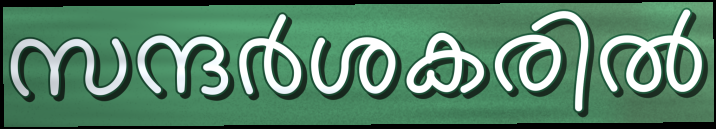
സന്ദർശകരിൽ